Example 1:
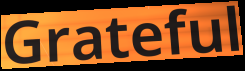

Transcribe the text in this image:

Grateful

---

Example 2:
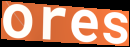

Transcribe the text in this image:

ores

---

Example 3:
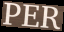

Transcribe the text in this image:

PER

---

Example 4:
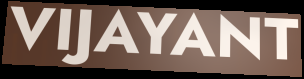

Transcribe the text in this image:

VIJAYANT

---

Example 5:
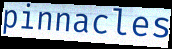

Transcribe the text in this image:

pinnacles